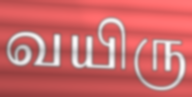
வயிரு